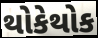
થોકેથોક